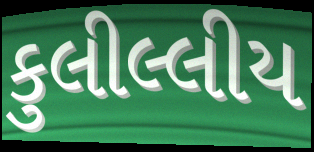
કુલીલ્લીય